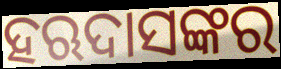
ହଋଦାସଙ୍କର